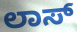
ಲಾಸ್